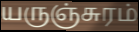
யருஞ்சுரம்